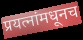
प्रयत्नांमधूनच